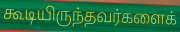
கூடியிருந்தவர்களைக்